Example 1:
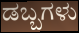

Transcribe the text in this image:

ಡಬ್ಬಗಳು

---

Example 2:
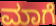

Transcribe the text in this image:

ಮಾಗೆ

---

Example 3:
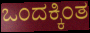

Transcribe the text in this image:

ಒಂದಕ್ಕಿಂತ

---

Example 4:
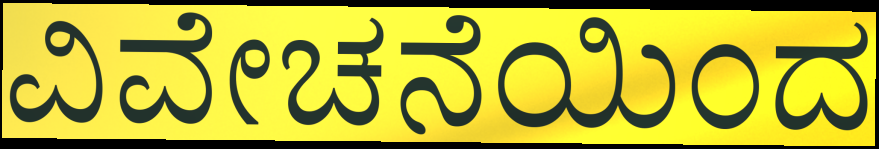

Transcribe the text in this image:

ವಿವೇಚನೆಯಿಂದ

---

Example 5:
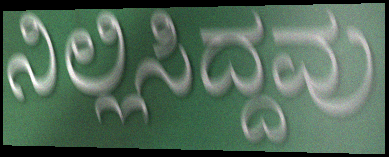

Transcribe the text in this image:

ನಿಲ್ಲಿಸಿದ್ದವು